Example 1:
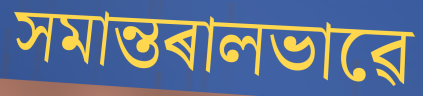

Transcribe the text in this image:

সমান্তৰালভাৱে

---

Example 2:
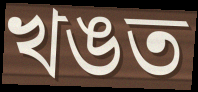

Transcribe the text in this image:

খঙত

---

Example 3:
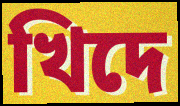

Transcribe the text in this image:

খিদে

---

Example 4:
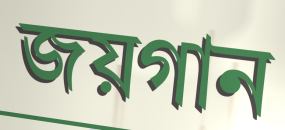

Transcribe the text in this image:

জয়গান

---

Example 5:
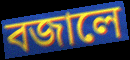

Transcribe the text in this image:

বজালে